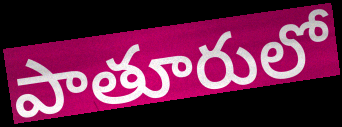
పాతూరులో